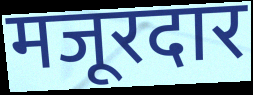
मजूरदार